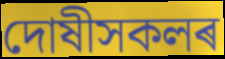
দোষীসকলৰ